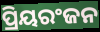
ପ୍ରିୟରଂଜନ